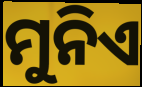
ମୁନିଏ